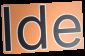
lde